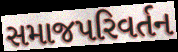
સમાજપરિવર્તન